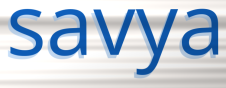
savya